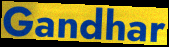
Gandhar